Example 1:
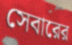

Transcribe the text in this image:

সেবারের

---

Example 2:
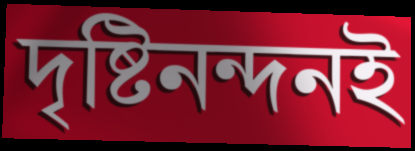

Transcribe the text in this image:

দৃষ্টিনন্দনই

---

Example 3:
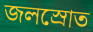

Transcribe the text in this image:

জলস্রোত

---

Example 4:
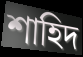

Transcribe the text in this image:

শাহিদ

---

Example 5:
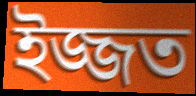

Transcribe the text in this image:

ইজ্জত